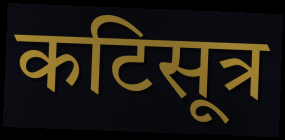
कटिसूत्र